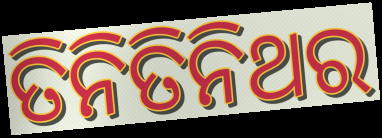
ତିନିତିନିଥର